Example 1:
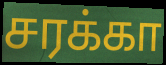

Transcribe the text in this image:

சரக்கா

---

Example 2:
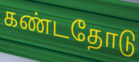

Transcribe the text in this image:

கண்டதோடு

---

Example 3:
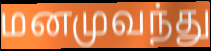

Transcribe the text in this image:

மனமுவந்து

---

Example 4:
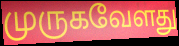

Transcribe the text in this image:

முருகவேளது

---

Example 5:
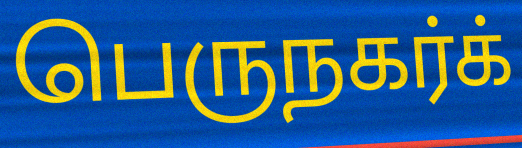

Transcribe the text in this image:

பெருநகர்க்